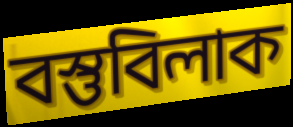
বস্তুবিলাক